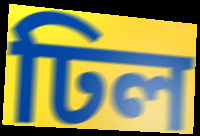
ঢিল